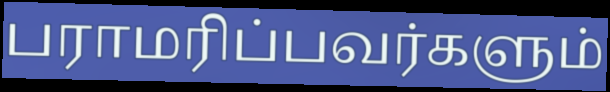
பராமரிப்பவர்களும்